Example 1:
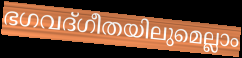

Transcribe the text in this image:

ഭഗവദ്ഗീതയിലുമെല്ലാം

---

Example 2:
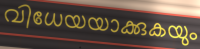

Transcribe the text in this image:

വിധേയയാക്കുകയും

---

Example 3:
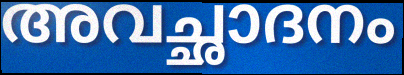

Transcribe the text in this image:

അവച്ഛാദനം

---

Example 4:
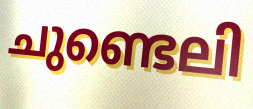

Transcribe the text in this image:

ചുണ്ടെലി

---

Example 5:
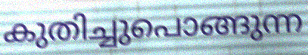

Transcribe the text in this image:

കുതിച്ചുപൊങ്ങുന്ന